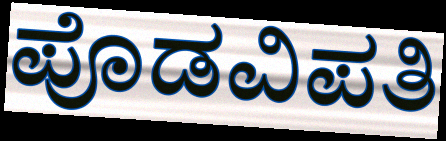
ಪೊಡವಿಪತಿ